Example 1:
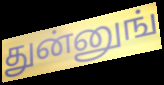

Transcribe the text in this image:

துன்னுங்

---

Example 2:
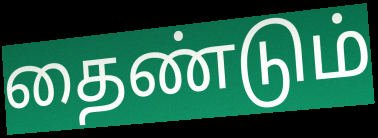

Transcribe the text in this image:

தைண்டும்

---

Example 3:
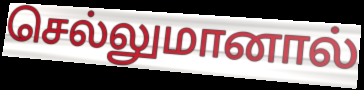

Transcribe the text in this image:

செல்லுமானால்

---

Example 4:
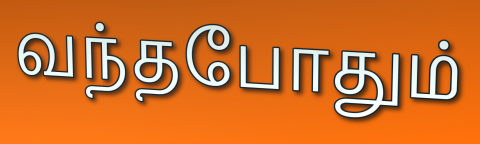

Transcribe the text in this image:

வந்தபோதும்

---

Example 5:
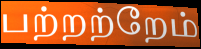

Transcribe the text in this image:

பற்றற்றேம்